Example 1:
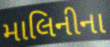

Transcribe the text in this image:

માલિનીના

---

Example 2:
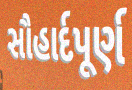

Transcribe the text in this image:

સૌહાર્દપૂર્ણ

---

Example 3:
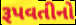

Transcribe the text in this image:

રૂપવતીનો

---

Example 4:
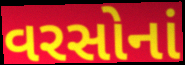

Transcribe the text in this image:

વરસોનાં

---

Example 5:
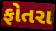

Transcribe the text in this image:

ફોતરા